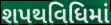
શપથવિધિમાં